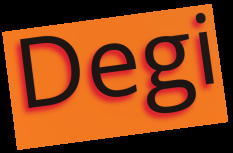
Degi